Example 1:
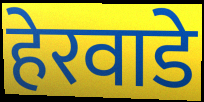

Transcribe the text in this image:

हेरवाडे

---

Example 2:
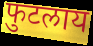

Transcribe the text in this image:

फुटलाय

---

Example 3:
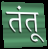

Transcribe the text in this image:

तंतू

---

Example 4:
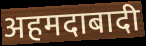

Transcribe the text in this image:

अहमदाबादी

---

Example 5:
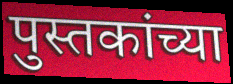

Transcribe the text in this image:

पुस्तकांच्या